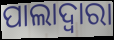
ପାଲାଦ୍ୱାରା